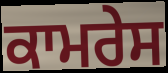
ਕਾਮਰੇਸ